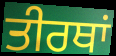
ਤੀਰਥਾਂ